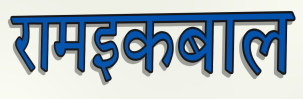
रामइकबाल